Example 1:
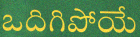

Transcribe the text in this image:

ఒదిగిపోయే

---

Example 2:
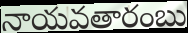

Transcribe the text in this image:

నాయవతారంబు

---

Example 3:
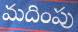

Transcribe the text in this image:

మదింపు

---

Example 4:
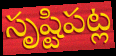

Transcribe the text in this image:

సృష్టిపట్ల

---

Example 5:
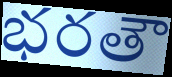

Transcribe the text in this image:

భరతౌ